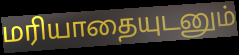
மரியாதையுடனும்